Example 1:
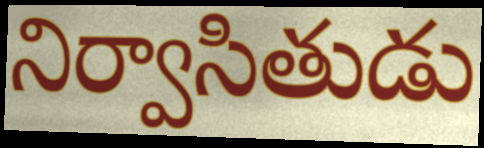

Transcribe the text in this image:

నిర్వాసితుడు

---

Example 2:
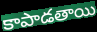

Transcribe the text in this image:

కాపాడతాయి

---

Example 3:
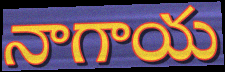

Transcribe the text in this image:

నాగాయ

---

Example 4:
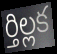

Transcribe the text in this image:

ర్తిల్లక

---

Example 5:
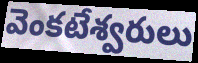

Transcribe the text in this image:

వెంకటేశ్వరులు